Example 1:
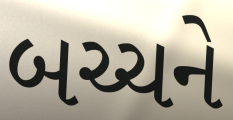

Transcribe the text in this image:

બચ્ચને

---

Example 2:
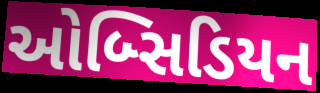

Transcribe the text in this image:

ઓબ્સિડિયન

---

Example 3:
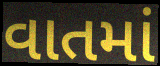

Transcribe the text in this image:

વાતમાં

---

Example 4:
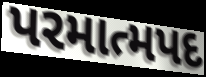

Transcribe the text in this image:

પરમાત્મપદ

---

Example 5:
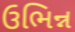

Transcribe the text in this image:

ઉભિન્ન